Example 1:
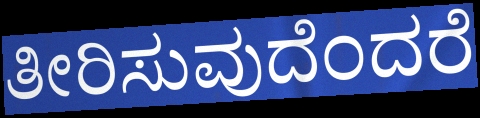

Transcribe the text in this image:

ತೀರಿಸುವುದೆಂದರೆ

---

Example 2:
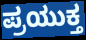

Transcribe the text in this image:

ಪ್ರಯುಕ್ತ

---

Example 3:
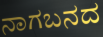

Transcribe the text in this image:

ನಾಗಬನದ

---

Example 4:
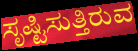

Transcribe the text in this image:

ಸೃಷ್ಟಿಸುತ್ತಿರುವ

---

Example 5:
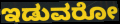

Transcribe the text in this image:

ಇಡುವರೋ